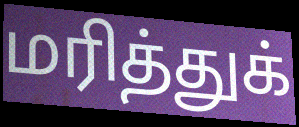
மரித்துக்